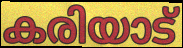
കരിയാട്